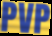
PVP